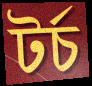
টর্চ